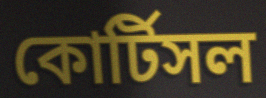
কোর্টিসল